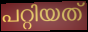
പറ്റിയത്